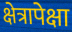
क्षेत्रापेक्षा